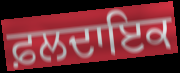
ਫ਼ਲਦਾਇਕ